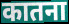
कातना